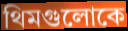
থিমগুলোকে